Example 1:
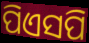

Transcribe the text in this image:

ପିଏସପି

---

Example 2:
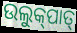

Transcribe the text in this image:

ଉଲୁକ୍‌ପାତ୍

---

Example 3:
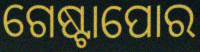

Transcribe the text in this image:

ଗେଷ୍ଟାପୋର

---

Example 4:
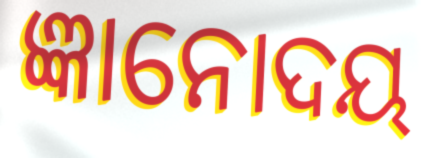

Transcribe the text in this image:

ଜ୍ଞାନୋଦୟ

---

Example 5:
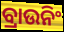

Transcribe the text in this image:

ବ୍ରାଉନିଂ